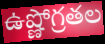
ఉష్ణోగ్రతల